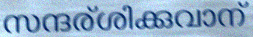
സന്ദര്ശിക്കുവാന്